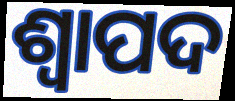
ଶ୍ୱାପଦ